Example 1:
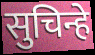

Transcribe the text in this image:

सुचिन्हे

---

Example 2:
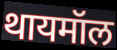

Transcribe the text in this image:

थायमॉल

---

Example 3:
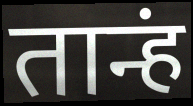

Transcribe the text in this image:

तान्हं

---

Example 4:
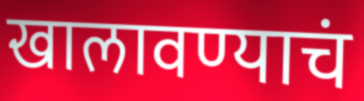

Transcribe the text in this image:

खालावण्याचं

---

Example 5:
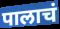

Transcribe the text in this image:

पालाचं